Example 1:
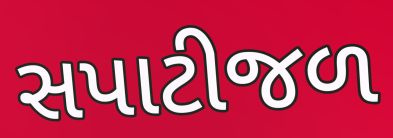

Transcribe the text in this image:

સપાટીજળ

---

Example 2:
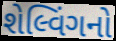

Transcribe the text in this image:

શેલ્વિંગનો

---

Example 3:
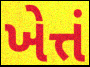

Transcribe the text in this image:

ખેત્તં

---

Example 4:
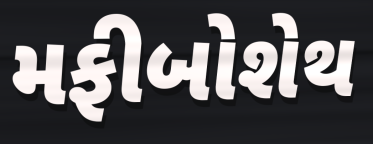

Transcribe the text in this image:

મફીબોશેથ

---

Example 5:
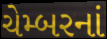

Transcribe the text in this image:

ચેમ્બરનાં